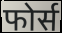
फोर्स